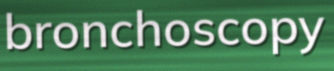
bronchoscopy